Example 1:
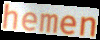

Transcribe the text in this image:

hemen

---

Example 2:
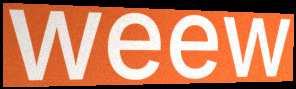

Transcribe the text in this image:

weew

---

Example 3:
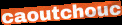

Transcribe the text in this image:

caoutchouc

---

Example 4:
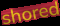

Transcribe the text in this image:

shored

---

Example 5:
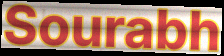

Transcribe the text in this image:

Sourabh